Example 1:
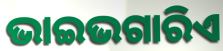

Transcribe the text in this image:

ଭାଇଭଗାରିଏ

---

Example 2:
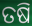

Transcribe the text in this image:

ତଷି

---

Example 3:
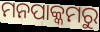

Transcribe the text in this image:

ମନପାକ୍କମରୁ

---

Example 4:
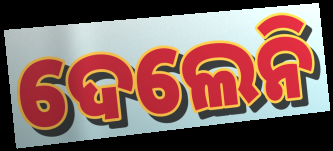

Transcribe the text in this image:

ଦେଲେନି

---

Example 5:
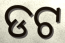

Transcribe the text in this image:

ଡଟ